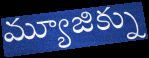
మ్యూజిక్ను